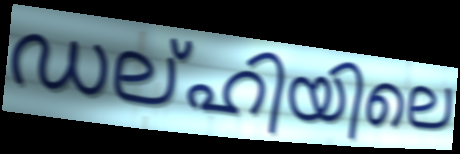
ഡല്ഹിയിലെ